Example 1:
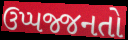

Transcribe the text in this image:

ઉપ્પજ્જનતો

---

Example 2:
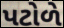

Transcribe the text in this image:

પટોળે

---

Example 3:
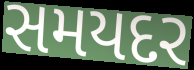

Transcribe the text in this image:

સમયદર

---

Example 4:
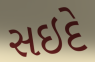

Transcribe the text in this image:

સઇદે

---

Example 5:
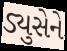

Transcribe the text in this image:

ડ્યુસેને